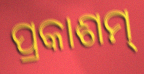
ପ୍ରକାଶମ୍